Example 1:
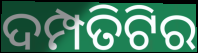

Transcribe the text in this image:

ଦମ୍ପତିଟିର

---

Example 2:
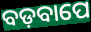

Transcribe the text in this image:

ବଡ଼ବାପେ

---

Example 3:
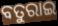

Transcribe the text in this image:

ବତୁରାଇ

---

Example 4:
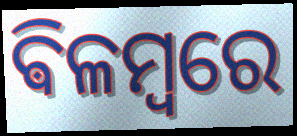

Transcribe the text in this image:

ଵିଳମ୍ବରେ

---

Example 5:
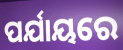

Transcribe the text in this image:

ପର୍ଯାୟରେ